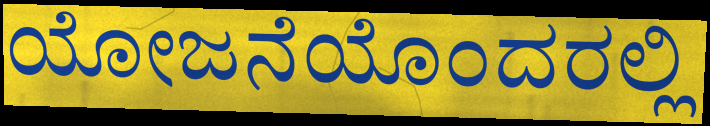
ಯೋಜನೆಯೊಂದರಲ್ಲಿ